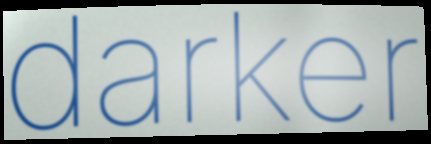
darker